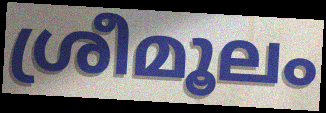
ശ്രീമൂലം